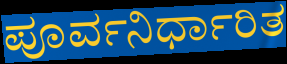
ಪೂರ್ವನಿರ್ಧಾರಿತ